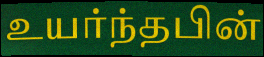
உயர்ந்தபின்